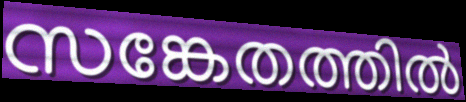
സങ്കേതത്തിൽ